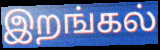
இறங்கல்